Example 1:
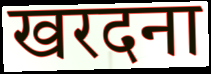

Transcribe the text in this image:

खरदना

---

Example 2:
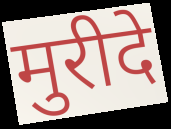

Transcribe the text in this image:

मुरीदे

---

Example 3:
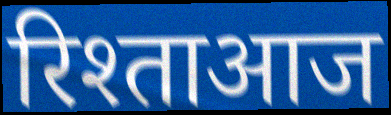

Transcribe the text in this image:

रिश्ताआज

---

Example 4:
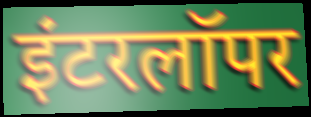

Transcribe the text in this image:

इंटरलॉपर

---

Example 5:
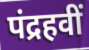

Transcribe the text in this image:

पंद्रहवीं